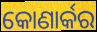
କୋଣାର୍କର